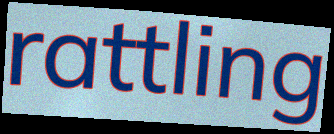
rattling